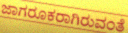
ಜಾಗರೂಕರಾಗಿರುವಂತೆ